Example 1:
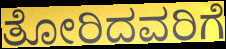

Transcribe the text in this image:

ತೋರಿದವರಿಗೆ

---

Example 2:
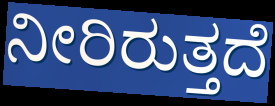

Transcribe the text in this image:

ನೀರಿರುತ್ತದೆ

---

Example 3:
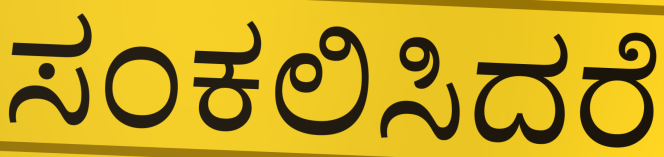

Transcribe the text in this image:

ಸಂಕಲಿಸಿದರೆ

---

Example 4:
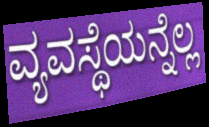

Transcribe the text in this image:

ವ್ಯವಸ್ಥೆಯನ್ನೆಲ್ಲ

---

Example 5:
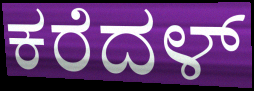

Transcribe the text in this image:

ಕರೆದಳ್